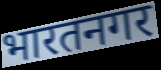
भारतनगर